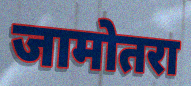
जामोतरा